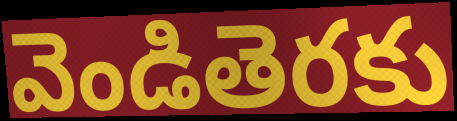
వెండితెరకు